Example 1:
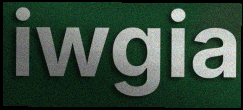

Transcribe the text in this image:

iwgia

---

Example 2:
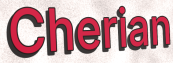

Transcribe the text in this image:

Cherian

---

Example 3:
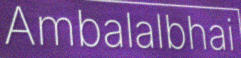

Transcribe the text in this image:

Ambalalbhai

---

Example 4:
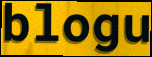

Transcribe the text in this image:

blogu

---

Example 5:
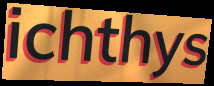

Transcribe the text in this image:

ichthys